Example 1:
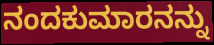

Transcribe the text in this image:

ನಂದಕುಮಾರನನ್ನು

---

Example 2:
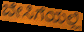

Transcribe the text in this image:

ಬೇಸಿಗೆಯಲ್ಲಿ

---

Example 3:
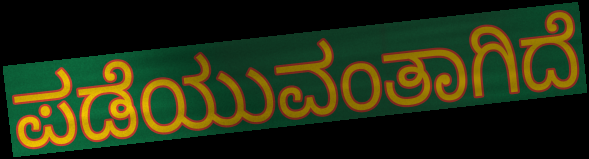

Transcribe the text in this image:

ಪಡೆಯುವಂತಾಗಿದೆ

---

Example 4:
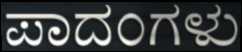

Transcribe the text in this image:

ಪಾದಂಗಳು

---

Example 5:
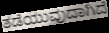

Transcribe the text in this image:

ತಡೆಯುವುದಾಗಿದೆ